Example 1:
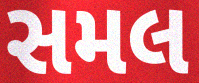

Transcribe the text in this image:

સમલ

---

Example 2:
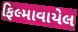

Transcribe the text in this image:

ફિલ્માવાયેલ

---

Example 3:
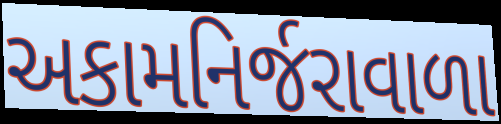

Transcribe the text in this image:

અકામનિર્જરાવાળા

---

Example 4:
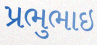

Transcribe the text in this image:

પ્રભુભાઇ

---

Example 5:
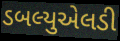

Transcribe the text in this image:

ડબલ્યુએલડી